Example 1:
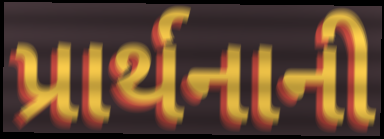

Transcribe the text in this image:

પ્રાર્થનાની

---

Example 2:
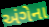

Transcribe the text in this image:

અંગેના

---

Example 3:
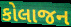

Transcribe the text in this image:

કોલાજન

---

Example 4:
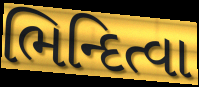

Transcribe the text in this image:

ભિન્દિત્વા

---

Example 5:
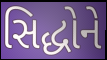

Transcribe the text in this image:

સિદ્ધોને